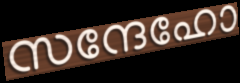
സന്ദേഹോ